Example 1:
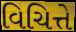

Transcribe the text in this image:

વિચિત્તે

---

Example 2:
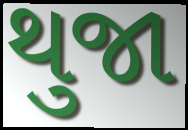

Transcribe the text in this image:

થુજા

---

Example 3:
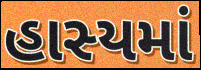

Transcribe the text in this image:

હાસ્યમાં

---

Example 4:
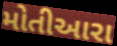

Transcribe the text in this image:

મોતીઆરા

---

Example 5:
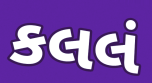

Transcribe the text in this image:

કલલં